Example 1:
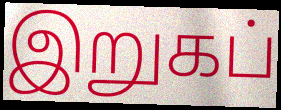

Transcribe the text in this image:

இறுகப்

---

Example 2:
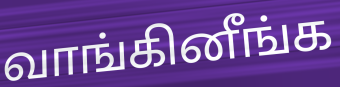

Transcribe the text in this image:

வாங்கினீங்க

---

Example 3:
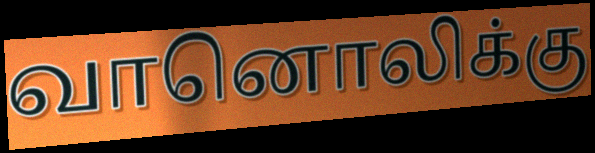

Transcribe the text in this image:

வானொலிக்கு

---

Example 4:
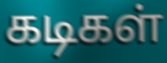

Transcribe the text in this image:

கடிகள்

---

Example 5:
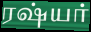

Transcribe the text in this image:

ரஷ்யர்